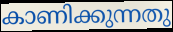
കാണിക്കുന്നതു